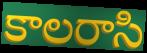
కాలరాసి